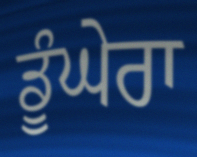
ਡੂੰਘੇਰਾ